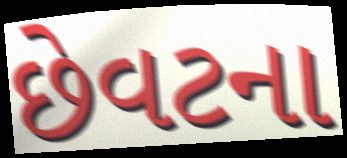
છેવટના